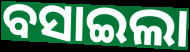
ବସାଇଲା